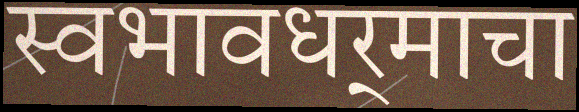
स्वभावधर्माचा